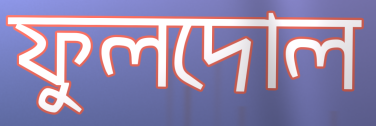
ফুলদোল